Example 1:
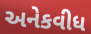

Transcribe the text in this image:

અનેકવીધ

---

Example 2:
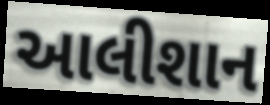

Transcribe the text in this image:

આલીશાન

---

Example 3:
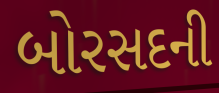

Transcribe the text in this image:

બોરસદની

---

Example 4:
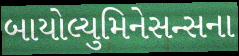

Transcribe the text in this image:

બાયોલ્યુમિનેસન્સના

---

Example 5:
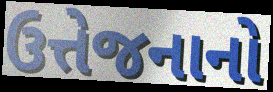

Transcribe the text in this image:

ઉત્તેજનાનો